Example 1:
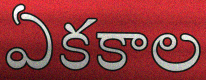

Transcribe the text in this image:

ఏకకాల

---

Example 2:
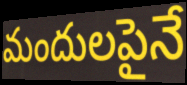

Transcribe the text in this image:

మందులపైనే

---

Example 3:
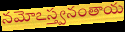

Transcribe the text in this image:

నమోఽస్త్వనంతాయ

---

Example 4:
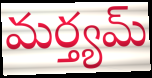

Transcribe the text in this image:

మర్త్యమ్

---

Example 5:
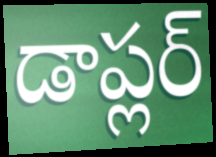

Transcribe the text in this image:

డాప్లర్